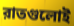
রাতগুলোই